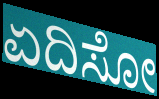
ಏದಿಸೋ